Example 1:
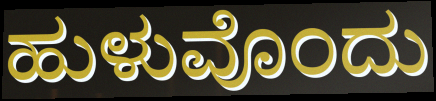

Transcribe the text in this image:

ಹುಳುವೊಂದು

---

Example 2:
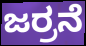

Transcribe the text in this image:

ಜರ್ರನೆ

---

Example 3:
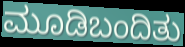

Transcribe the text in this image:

ಮೂಡಿಬಂದಿತು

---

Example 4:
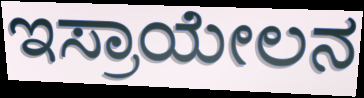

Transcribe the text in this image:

ಇಸ್ರಾಯೇಲನ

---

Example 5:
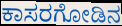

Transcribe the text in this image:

ಕಾಸರಗೋಡಿನ